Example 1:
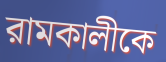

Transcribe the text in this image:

রামকালীকে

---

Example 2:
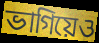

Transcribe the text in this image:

ভাগিয়েও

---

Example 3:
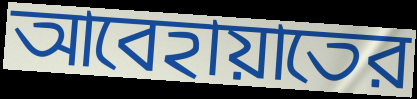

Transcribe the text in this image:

আবেহায়াতের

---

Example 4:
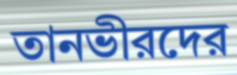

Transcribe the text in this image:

তানভীরদের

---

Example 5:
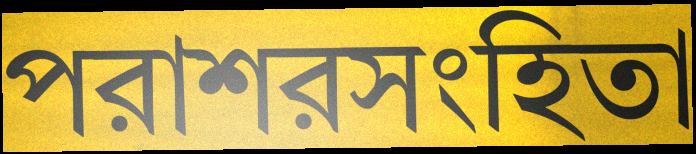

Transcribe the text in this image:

পরাশরসংহিতা